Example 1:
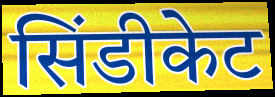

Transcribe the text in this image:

सिंडीकेट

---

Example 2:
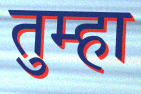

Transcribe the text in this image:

तुम्हा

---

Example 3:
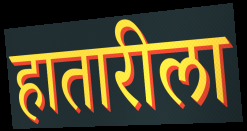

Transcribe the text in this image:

हातारीला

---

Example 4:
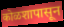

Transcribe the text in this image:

कोळशापासून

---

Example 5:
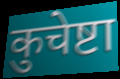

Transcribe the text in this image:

कुचेष्टा